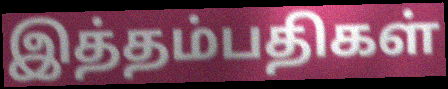
இத்தம்பதிகள்